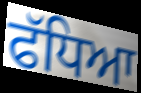
ਫੱਧਿਆ